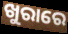
ଖୁରାରେ